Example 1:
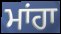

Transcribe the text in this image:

ਮਾਂਹਾ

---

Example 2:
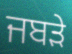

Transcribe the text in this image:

ਜਬੜੇ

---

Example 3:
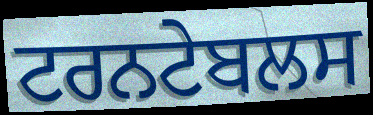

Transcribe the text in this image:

ਟਰਨਟੇਬਲਸ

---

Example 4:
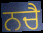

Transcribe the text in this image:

ਨਚੈ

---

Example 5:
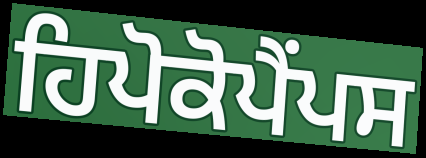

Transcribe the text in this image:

ਹਿਪੋਕੋਪੈਂਪਸ